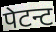
पेटन्ट